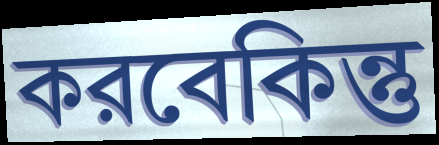
করবেকিন্তু